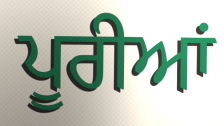
ਪੂਰੀਆਂ